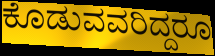
ಕೊಡುವವರಿದ್ದರೂ